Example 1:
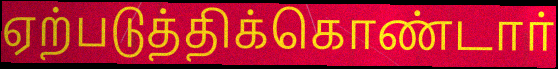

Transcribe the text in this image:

ஏற்படுத்திக்கொண்டார்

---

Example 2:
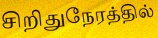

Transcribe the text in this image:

சிறிதுநேரத்தில்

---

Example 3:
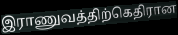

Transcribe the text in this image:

இராணுவத்திற்கெதிரான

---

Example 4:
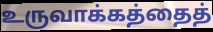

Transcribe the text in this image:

உருவாக்கத்தைத்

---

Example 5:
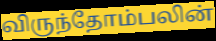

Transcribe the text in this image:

விருந்தோம்பலின்